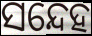
ସନ୍ଦେହ